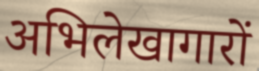
अभिलेखागारों